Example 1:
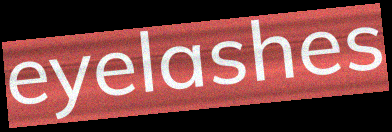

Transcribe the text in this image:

eyelashes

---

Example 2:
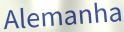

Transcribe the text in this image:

Alemanha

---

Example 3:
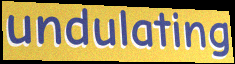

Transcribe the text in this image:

undulating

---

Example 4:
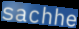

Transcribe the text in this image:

sachhe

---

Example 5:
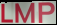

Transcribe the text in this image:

LMP